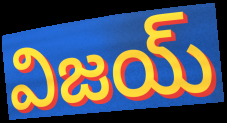
విజయ్